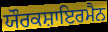
ਯੌਰਕਸ਼ਾਇਰਮੈਨ